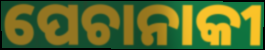
ପେଚାନାକୀ